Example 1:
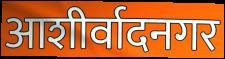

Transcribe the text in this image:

आशीर्वादनगर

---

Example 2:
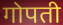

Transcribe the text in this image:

गोपती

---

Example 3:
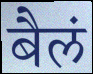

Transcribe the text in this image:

बैलं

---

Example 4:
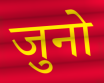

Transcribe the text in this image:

जुनो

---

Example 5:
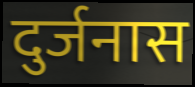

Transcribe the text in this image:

दुर्जनास